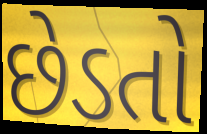
છેડતો